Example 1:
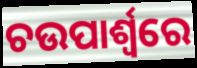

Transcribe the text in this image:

ଚଉପାର୍ଶ୍ୱରେ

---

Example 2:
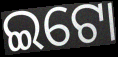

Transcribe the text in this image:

ଇଟୋ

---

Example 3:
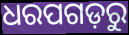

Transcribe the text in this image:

ଧରପଗଡ଼ରୁ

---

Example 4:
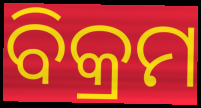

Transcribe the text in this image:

ବିକ୍ରମ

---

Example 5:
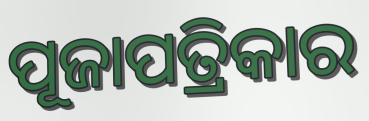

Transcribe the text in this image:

ପୂଜାପତ୍ରିକାର